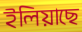
ইলিয়াছে